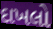
દાખલો